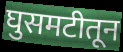
घुसमटीतून